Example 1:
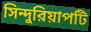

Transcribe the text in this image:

সিন্দুরিয়াপটি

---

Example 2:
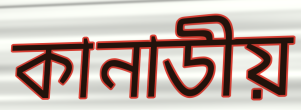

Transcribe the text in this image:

কানাডীয়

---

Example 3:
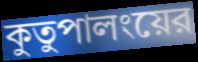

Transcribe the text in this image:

কুতুপালংয়ের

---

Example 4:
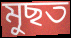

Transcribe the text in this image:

মুছত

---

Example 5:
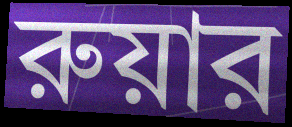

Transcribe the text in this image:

রুয়ার